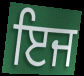
ਇਜ